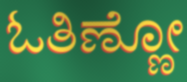
ಓತಿಣ್ಣೋ